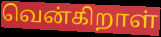
வென்கிறாள்